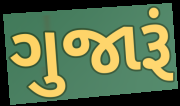
ગુજારૂં